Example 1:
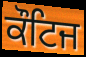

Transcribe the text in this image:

ਕੌਟਿਜ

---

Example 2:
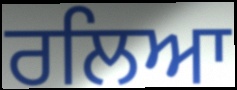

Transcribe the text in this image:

ਰਲਿਆ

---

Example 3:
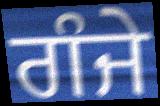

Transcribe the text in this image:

ਗੰਜੇ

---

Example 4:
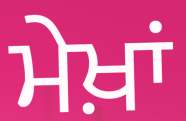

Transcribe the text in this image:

ਮੇਖ਼ਾਂ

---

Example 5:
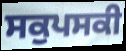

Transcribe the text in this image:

ਸਕੁਪਸਕੀ